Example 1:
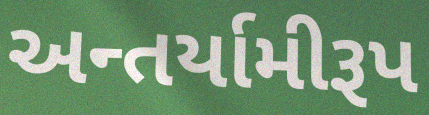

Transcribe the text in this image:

અન્તર્યામીરૂપ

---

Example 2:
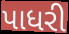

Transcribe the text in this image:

પાધરી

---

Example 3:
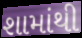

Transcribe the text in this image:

શામાંથી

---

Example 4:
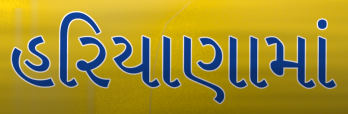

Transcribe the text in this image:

હરિયાણામાં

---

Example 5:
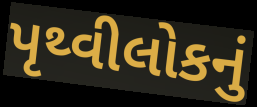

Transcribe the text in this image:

પૃથ્વીલોકનું